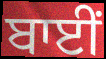
ਬਾਈਂ